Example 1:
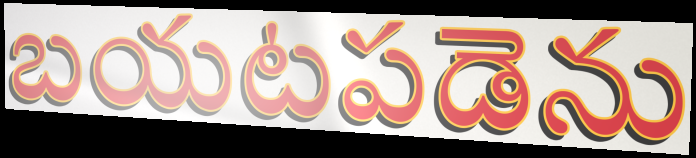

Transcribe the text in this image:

బయటపడెను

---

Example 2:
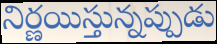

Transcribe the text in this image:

నిర్ణయిస్తున్నప్పుడు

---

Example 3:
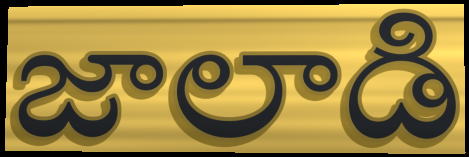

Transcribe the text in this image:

జాలాడి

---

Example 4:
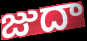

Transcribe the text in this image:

జుదా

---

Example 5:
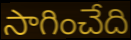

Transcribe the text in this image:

సాగించేది